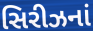
સિરીઝનાં